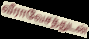
வீராவேசத்துடன்